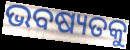
ଭବଷ୍ୟତକୁ